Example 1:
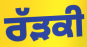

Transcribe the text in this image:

ਰੱੜਕੀ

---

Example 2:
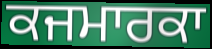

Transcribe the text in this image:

ਕਜਮਾਰਕਾ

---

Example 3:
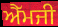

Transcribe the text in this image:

ਐੱਮਜੀ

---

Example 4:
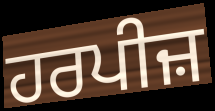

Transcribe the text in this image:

ਹਰਪੀਜ਼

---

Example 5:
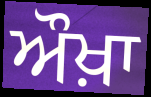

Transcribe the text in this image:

ਔਖ਼ਾ